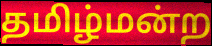
தமிழ்மன்ற